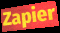
Zapier